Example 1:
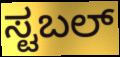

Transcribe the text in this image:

ಸ್ಟಬಲ್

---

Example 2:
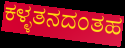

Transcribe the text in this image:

ಕಳ್ಳತನದಂತಹ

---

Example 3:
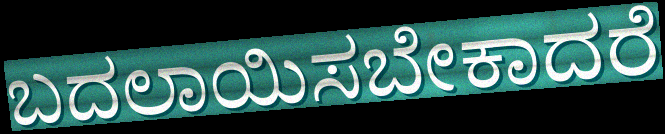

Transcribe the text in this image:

ಬದಲಾಯಿಸಬೇಕಾದರೆ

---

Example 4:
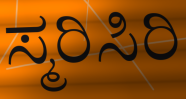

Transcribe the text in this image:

ಸ್ಮರಿಸಿರಿ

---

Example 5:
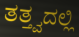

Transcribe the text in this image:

ತತ್ತ್ವದಲ್ಲಿ